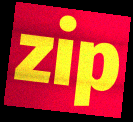
zip